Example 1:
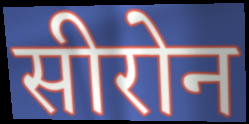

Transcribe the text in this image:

सीरोन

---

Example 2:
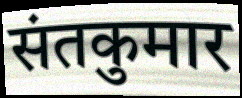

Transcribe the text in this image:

संतकुमार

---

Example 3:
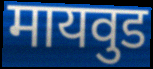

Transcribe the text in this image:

मायवुड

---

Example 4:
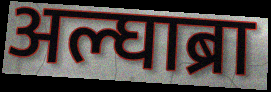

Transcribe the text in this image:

अल्घाब्रा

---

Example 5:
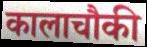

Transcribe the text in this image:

कालाचौकी